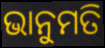
ଭାନୁମତି